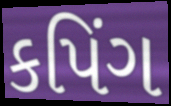
કપિંગ